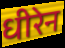
धीरेन